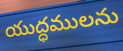
యుద్ధములను